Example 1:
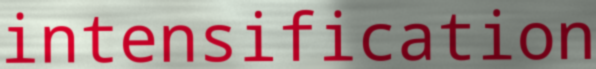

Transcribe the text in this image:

intensification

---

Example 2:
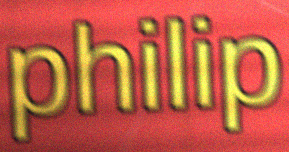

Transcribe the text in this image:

philip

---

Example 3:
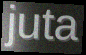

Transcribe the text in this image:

juta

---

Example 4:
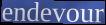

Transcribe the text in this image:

endevour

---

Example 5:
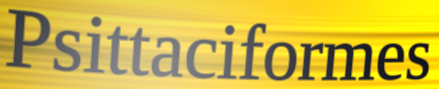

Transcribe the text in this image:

Psittaciformes